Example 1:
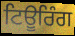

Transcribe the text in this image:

ਟਿਊਰਿੰਗ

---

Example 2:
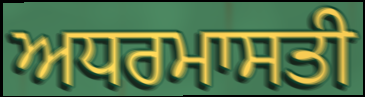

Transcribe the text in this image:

ਅਧਰਮਾਸਤੀ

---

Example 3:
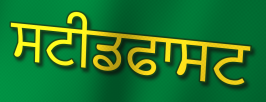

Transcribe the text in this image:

ਸਟੀਡਫਾਸਟ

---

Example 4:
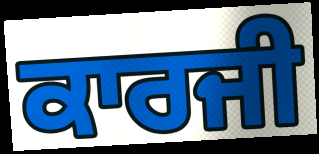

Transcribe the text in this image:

ਕਾਰਜੀ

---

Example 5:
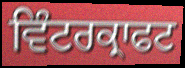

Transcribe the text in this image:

ਵਿੰਟਰਕ੍ਰਾਫਟ